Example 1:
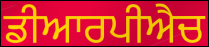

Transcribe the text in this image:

ਡੀਆਰਪੀਐਚ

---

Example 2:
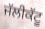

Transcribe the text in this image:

ਜੱਲੀਕੱਟੂ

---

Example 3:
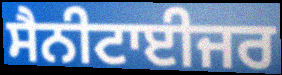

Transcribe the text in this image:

ਸੈਨੀਟਾਈਜਰ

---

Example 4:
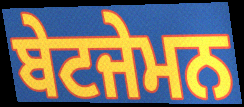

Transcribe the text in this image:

ਬੇਟਜੇਮਨ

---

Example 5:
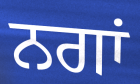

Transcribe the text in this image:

ਨਗਾਂ